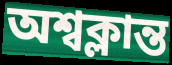
অশ্বক্লান্ত